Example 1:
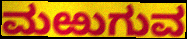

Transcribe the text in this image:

ಮಱುಗುವ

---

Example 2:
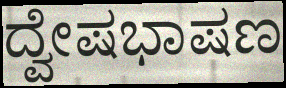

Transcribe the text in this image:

ದ್ವೇಷಭಾಷಣ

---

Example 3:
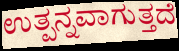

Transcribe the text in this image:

ಉತ್ಪನ್ನವಾಗುತ್ತದೆ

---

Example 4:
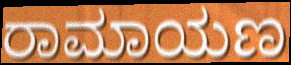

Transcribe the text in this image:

ರಾಮಾಯಣ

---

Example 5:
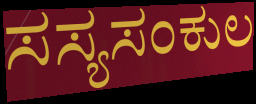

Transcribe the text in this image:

ಸಸ್ಯಸಂಕುಲ